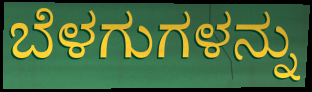
ಬೆಳಗುಗಳನ್ನು